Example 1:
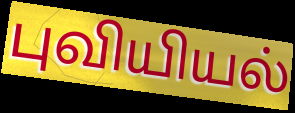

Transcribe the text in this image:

புவியியல்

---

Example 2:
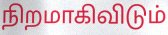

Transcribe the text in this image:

நிறமாகிவிடும்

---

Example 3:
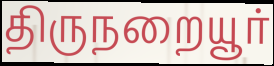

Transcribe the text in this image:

திருநறையூர்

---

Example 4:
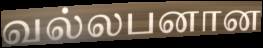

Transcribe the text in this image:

வல்லபனான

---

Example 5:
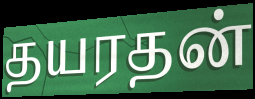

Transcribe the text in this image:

தயரதன்